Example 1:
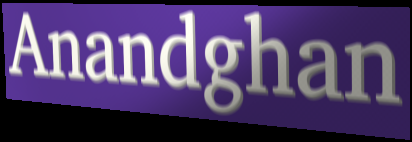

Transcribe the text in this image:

Anandghan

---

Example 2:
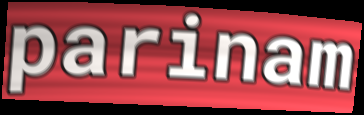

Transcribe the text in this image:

parinam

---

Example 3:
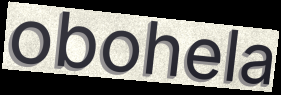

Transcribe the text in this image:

obohela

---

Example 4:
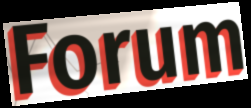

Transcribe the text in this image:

Forum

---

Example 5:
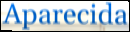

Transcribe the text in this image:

Aparecida